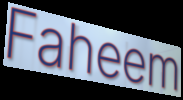
Faheem